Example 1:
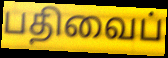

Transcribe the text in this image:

பதிவைப்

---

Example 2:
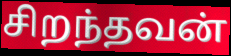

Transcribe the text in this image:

சிறந்தவன்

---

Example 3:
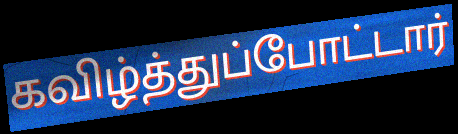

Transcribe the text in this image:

கவிழ்த்துப்போட்டார்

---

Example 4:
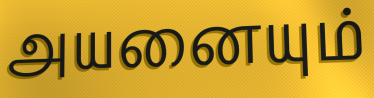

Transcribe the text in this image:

அயனையும்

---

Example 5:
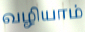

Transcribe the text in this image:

வழியாம்